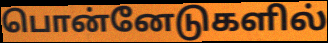
பொன்னேடுகளில்